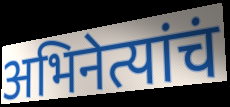
अभिनेत्यांचं